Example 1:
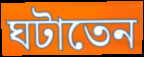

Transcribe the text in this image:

ঘটাতেন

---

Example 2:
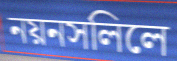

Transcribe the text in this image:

নয়নসলিলে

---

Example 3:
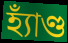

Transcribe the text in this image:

হ্যাঁণ্ড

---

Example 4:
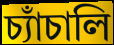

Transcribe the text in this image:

চ্যাঁচালি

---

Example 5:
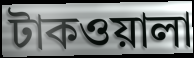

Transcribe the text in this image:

টাকওয়ালা